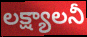
లక్ష్యాలనీ